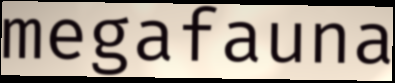
megafauna